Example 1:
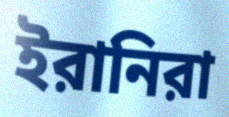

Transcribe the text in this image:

ইরানিরা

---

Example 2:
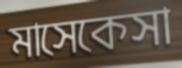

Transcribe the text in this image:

মাসেকেসা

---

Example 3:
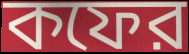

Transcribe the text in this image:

কফের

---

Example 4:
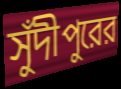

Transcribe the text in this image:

সুঁদীপুরের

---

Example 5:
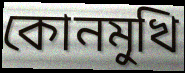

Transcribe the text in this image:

কোনমুখি